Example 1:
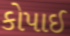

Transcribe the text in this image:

કોપાઈ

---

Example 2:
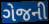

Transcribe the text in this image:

ગેજની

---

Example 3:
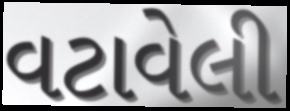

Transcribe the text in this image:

વટાવેલી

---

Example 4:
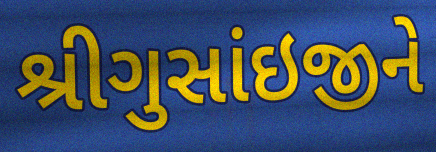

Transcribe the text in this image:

શ્રીગુસાંઇજીને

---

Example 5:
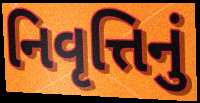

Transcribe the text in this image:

નિવૃત્તિનું